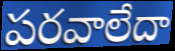
పరవాలేదా